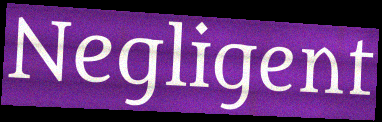
Negligent